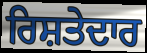
ਰਿਸ਼ਤੇਦਾਰ